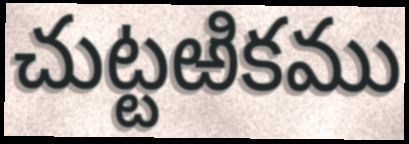
చుట్టఱికము